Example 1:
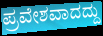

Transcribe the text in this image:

ಪ್ರವೇಶವಾದದ್ದು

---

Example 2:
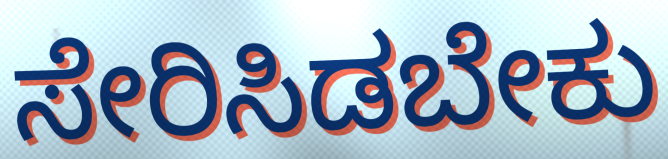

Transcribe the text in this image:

ಸೇರಿಸಿಡಬೇಕು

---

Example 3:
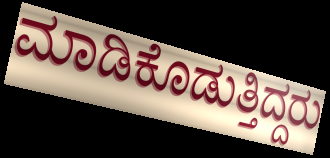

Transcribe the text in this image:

ಮಾಡಿಕೊಡುತ್ತಿದ್ದರು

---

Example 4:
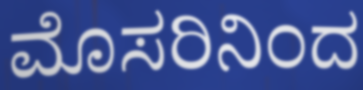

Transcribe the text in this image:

ಮೊಸರಿನಿಂದ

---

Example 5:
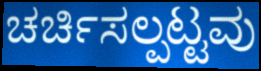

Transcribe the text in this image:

ಚರ್ಚಿಸಲ್ಪಟ್ಟವು